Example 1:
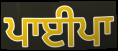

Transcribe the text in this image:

ਪਾਈਪਾ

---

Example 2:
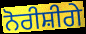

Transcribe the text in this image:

ਨੋਰੀਸ਼ੀਗੇ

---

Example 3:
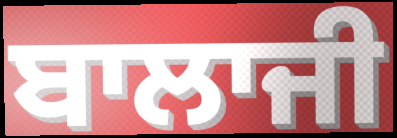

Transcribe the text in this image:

ਬਾਲਾਜੀ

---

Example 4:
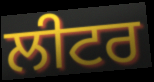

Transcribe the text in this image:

ਲੀਟਰ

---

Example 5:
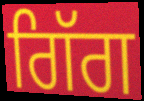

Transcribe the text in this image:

ਗਿੱਗ